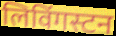
लिविंगस्टन